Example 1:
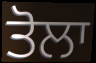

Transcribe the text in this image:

ਤੋਲਾ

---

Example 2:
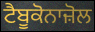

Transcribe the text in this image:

ਟੈਬੂਕੋਨਾਜ਼ੋਲ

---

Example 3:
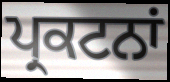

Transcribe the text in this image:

ਪ੍ਰਕਟਨਾਂ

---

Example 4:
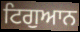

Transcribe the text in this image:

ਟਿਗੁਆਨ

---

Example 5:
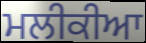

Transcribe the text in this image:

ਮਲੀਕੀਆ